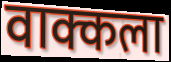
वाक्कला